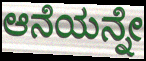
ಆನೆಯನ್ನೇ